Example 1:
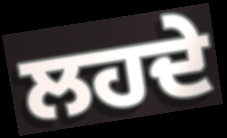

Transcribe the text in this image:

ਲਹਦੇ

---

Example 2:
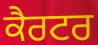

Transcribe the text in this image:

ਕੈਰਟਰ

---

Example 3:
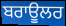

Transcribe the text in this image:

ਬਰਾਊਲਰ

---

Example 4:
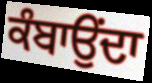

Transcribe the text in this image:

ਕੰਬਾਉਂਦਾ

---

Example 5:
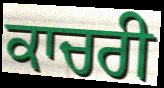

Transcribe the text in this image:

ਕਾਚਰੀ